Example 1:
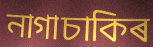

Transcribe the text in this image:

নাগাচাকিৰ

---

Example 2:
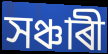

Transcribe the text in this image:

সঞ্চাৰী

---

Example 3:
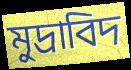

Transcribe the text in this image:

মুদ্ৰাবিদ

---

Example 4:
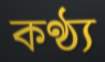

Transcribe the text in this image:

কণ্ঠ্য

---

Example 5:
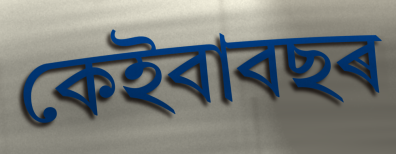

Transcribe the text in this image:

কেইবাবছৰ